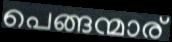
പെങ്ങന്മാര്